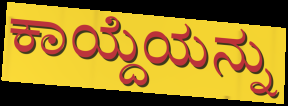
ಕಾಯ್ದೆಯನ್ನು